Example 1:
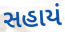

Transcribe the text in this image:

સહાયં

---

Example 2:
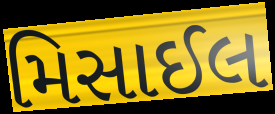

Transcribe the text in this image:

મિસાઈલ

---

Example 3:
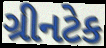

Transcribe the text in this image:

ગ્રીનટેક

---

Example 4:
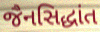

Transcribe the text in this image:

જૈનસિદ્ધાંત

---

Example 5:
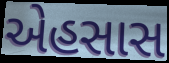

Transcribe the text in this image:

એહસાસ